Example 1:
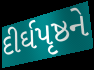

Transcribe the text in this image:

દીર્ઘપૃષ્ઠને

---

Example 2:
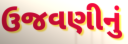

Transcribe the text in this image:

ઉજવણીનું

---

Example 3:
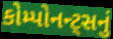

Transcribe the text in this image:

કોમ્પોનન્ટ્સનું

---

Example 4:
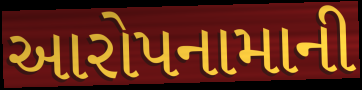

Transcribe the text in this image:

આરોપનામાની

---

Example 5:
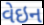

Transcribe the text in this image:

વેઇન